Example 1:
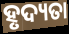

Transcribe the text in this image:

ହୃଦ୍ୟତା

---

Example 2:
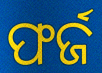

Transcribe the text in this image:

ଫର୍ଜ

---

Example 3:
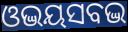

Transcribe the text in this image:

ଓଦ୍ଭୟସବଦ୍ଭ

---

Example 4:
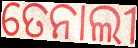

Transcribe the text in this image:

ତେନାଲୀ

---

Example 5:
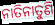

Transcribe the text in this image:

ନାତିନାତୁଣି